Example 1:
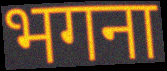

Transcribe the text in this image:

भगना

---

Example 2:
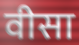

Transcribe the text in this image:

वीसा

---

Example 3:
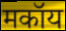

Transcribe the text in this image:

मकॉय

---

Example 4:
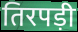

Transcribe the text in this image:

तिरपड़ी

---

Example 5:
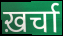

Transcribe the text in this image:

ख़र्चा